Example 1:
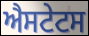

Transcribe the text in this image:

ਐਸਟੇਟਸ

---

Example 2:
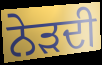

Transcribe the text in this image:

ਨੇੜਦੀ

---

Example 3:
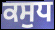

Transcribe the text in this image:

ਕਸੁਧ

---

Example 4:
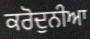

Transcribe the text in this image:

ਕਰੋਦੁਨੀਆ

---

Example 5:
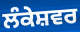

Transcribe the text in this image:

ਲੰਕੇਸ਼ਵਰ